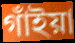
গাঁইয়া